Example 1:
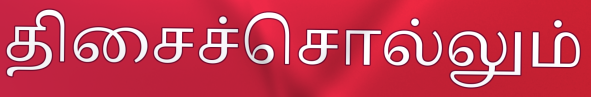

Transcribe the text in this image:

திசைச்சொல்லும்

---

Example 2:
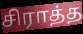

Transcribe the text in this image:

சிராத்த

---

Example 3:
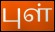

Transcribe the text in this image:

புள்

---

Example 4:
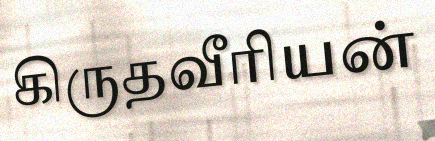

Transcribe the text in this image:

கிருதவீரியன்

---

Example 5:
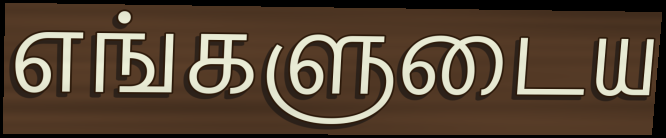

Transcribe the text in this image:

எங்களுடைய